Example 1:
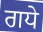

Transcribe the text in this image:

ਗਧੇ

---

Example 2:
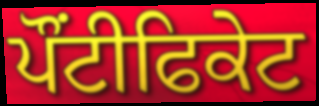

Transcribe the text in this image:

ਪੌਂਟੀਫਿਕੇਟ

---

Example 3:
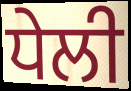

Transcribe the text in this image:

ਧੇਲੀ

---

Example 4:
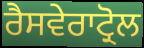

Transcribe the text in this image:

ਰੈਸਵੇਰਾਟ੍ਰੋਲ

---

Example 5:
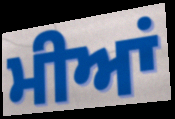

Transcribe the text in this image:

ਮੀਆਂ